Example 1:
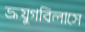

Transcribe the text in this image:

ভ্রূযুগবিলাসে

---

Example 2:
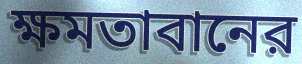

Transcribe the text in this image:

ক্ষমতাবানের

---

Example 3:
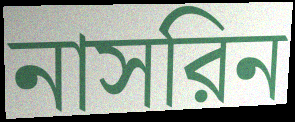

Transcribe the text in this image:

নাসরিন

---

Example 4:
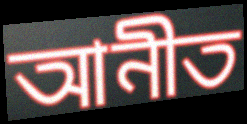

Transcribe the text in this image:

আনীত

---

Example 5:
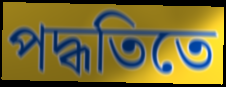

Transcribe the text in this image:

পদ্ধতিতে